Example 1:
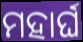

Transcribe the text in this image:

ମହାର୍ଘ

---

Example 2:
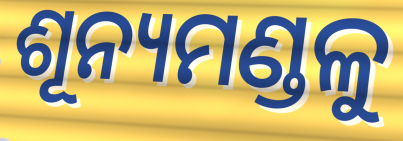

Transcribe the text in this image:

ଶୂନ୍ୟମଣ୍ଡଳୁ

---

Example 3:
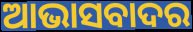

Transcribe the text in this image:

ଆଭାସବାଦର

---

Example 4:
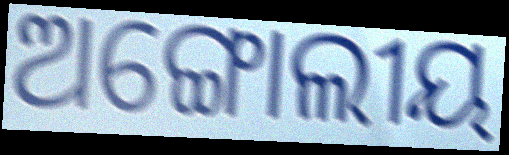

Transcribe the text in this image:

ଅଙ୍ଗୋଲୀୟ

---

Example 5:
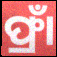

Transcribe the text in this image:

ଫ୍ରାଁ